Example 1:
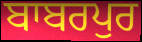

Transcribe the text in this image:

ਬਾਬਰਪੁਰ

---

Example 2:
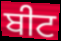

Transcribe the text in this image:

ਬੀਟ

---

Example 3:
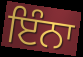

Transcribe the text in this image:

ਇੰਨਾ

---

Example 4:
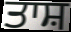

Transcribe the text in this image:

ਤਾਸ਼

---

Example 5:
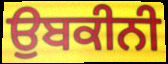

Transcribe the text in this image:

ਉਬਕੀਨੀ